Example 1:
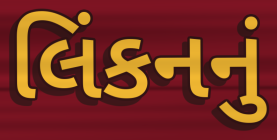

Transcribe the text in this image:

લિંકનનું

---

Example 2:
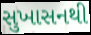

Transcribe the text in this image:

સુખાસનથી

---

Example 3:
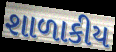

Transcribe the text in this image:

શાળાકીય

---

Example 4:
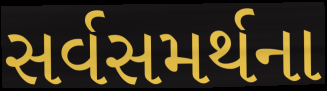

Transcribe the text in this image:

સર્વસમર્થના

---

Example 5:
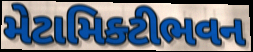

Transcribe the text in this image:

મેટામિક્ટીભવન